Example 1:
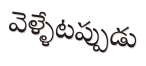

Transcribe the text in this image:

వెళ్ళేటప్పుడు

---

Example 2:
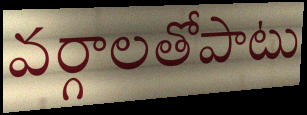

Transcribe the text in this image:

వర్గాలతోపాటు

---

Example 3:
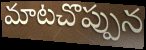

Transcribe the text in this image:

మాటచొప్పున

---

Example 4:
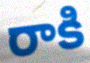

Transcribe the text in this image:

రాకి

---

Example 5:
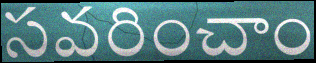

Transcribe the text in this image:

సవరించాం